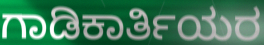
ಗಾಡಿಕಾರ್ತಿಯರ